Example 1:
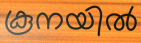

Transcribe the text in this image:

കൂനയിൽ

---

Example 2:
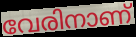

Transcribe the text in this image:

വേരിനാണ്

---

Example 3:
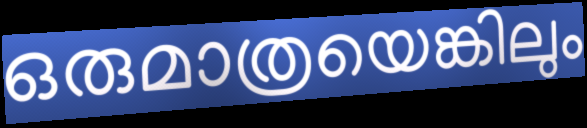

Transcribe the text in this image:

ഒരുമാത്രയെങ്കിലും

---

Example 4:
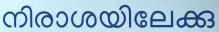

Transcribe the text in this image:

നിരാശയിലേക്കു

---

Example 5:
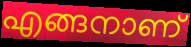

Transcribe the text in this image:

എങ്ങനാണ്